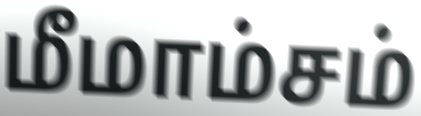
மீமாம்சம்